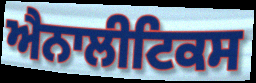
ਐਨਾਲੀਟਿਕਸ